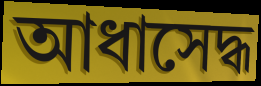
আধাসেদ্ধ